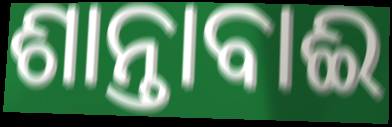
ଶାନ୍ତାବାଈ